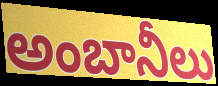
అంబానీలు